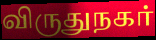
விருதுநகர்